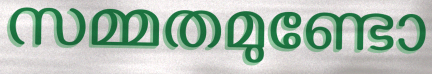
സമ്മതമുണ്ടോ